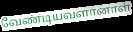
வேண்டியவளானாள்